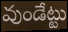
వుండేట్టు